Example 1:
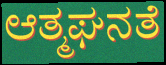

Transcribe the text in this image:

ಆತ್ಮಘನತೆ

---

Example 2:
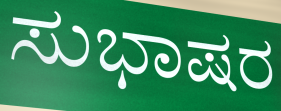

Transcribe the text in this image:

ಸುಭಾಷರ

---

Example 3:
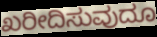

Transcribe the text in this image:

ಖರೀದಿಸುವುದೂ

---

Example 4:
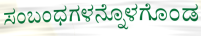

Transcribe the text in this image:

ಸಂಬಂಧಗಳನ್ನೊಳಗೊಂಡ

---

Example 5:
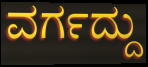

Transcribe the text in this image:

ವರ್ಗದ್ದು